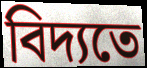
বিদ্যতে